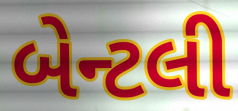
બેન્ટલી